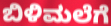
ಬಿಳಿಮಲೆಗೆ